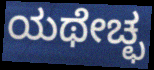
ಯಥೇಚ್ಛ